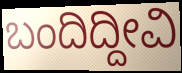
ಬಂದಿದ್ದೀವಿ